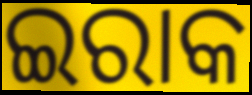
ଇରାକ